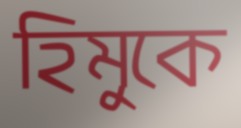
হিমুকে